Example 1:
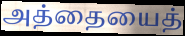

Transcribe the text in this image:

அத்தையைத்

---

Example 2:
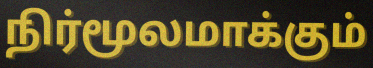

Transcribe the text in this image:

நிர்மூலமாக்கும்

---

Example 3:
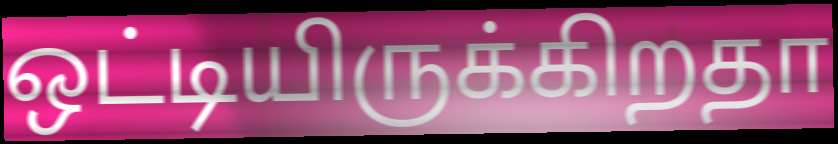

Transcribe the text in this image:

ஒட்டியிருக்கிறதா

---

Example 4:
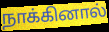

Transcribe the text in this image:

நாக்கினால்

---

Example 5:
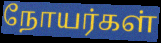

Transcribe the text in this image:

நோயர்கள்